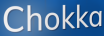
Chokka